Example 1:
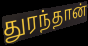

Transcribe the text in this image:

துரந்தான்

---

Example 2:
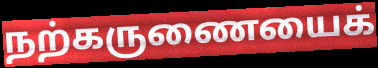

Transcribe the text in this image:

நற்கருணையைக்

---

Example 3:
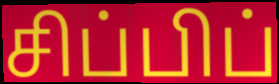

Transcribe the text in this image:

சிப்பிப்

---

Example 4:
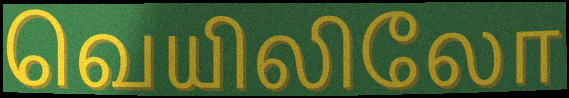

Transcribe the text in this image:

வெயிலிலோ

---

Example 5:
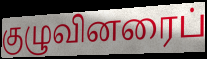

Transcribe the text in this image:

குழுவினரைப்